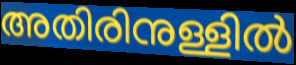
അതിരിനുള്ളിൽ